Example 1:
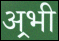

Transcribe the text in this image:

अ्रभी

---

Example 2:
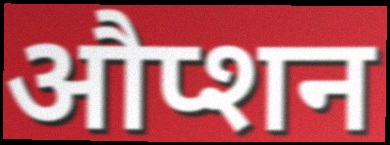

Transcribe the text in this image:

औप्शन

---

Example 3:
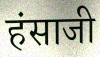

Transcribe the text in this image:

हंसाजी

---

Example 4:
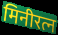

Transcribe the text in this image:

मिनीरत्न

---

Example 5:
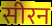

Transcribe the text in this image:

सीरन